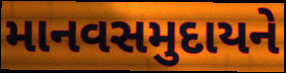
માનવસમુદાયને